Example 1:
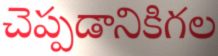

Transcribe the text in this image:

చెప్పడానికిగల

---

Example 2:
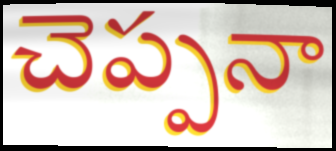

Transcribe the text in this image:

చెప్పనా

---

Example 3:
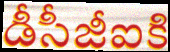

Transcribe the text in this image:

డీసీజీఐకి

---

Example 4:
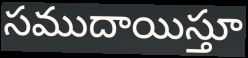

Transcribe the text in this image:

సముదాయిస్తూ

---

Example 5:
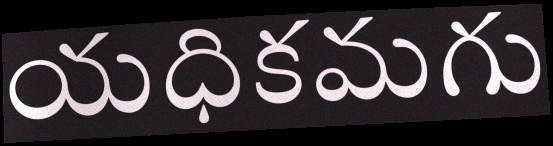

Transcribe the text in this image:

యధికమగు